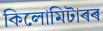
কিলোমিটাৰৰ